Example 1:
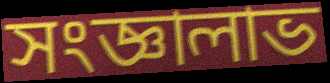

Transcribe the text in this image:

সংজ্ঞালাভ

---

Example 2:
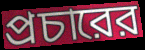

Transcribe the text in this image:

প্রচারের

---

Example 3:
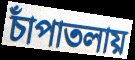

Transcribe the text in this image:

চাঁপাতলায়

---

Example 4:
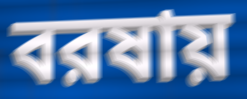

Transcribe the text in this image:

বরষায়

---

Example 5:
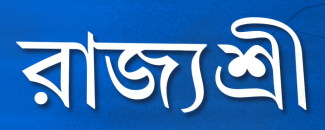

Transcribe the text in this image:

রাজ্যশ্রী